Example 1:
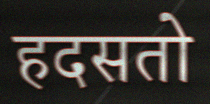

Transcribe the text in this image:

हदसतो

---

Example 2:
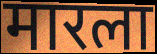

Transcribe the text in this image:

मारला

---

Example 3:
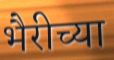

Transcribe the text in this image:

भैरीच्या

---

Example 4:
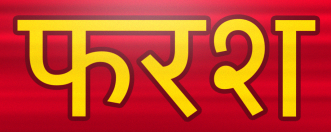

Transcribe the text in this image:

फरश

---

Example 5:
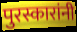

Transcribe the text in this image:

पुरस्कारांनी